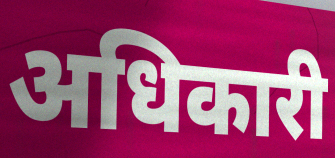
अधिकारी